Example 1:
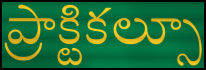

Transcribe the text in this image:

ప్రాక్టికల్సూ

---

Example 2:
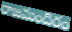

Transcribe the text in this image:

రాజమందిరం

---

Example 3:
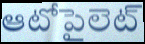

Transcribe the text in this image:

ఆటోపైలెట్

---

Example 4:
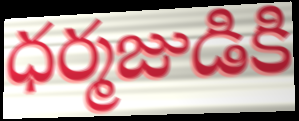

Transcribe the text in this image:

ధర్మజుడికి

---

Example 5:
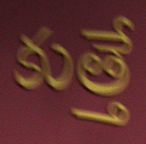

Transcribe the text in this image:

కుత్తే